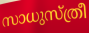
സാധുസ്ത്രീ